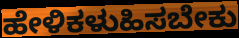
ಹೇಳಿಕಳುಹಿಸಬೇಕು